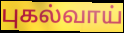
புகல்வாய்